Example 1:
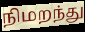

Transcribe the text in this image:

நிமறந்து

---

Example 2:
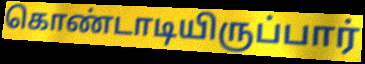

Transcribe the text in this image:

கொண்டாடியிருப்பார்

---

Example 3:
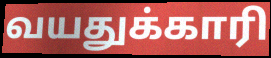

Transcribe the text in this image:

வயதுக்காரி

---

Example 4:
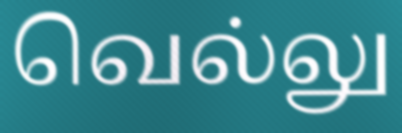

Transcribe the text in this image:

வெல்லு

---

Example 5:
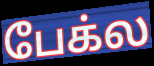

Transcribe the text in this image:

பேக்ல